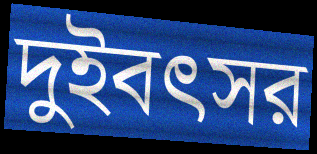
দুইবৎসর